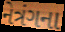
નેત્રંગના